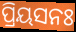
ପ୍ରିୟସନଃ